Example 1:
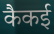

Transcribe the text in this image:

कैकई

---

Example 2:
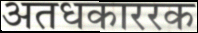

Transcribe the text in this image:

अतधकाररक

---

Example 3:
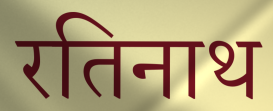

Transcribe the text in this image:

रतिनाथ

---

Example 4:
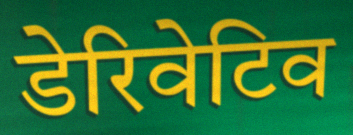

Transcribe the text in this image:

डेरिवेटिव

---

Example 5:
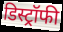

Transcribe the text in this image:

डिस्ट्रॉफी